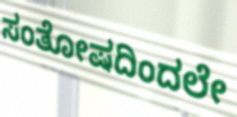
ಸಂತೋಷದಿಂದಲೇ